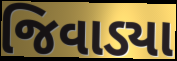
જિવાડ્યા